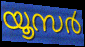
യൂസർ